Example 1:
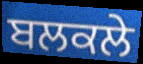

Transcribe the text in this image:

ਬਲਕਲੇ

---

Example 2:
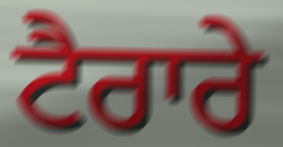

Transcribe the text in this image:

ਟੈਰਾਰੇ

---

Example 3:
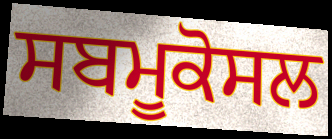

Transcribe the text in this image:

ਸਬਮੂਕੋਸਲ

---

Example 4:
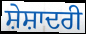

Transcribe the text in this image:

ਸ਼ੇਸ਼ਾਦਰੀ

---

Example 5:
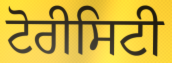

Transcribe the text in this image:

ਟੋਰੀਸਿਟੀ